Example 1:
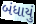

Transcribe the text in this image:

બંધાયું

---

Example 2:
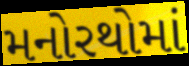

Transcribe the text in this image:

મનોરથોમાં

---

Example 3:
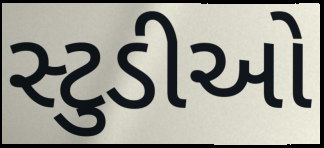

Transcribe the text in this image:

સ્ટુડીઓ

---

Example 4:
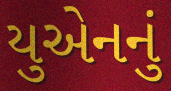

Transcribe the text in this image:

યુએનનું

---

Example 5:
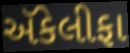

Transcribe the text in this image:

ઍકેલીફા